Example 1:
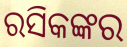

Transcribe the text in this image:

ରସିକଙ୍କର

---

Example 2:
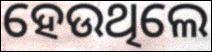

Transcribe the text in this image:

ହେଉଥିଲେ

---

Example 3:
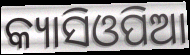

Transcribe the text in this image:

କ୍ୟାସିଓପିଆ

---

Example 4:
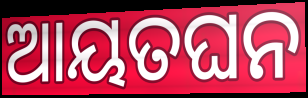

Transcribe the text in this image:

ଆୟତଘନ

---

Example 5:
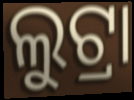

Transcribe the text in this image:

ଲୁଟ୍ରା